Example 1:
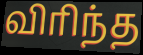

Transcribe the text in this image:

விரிந்த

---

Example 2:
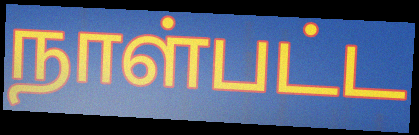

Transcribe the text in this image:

நாள்பட்ட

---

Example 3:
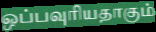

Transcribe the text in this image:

ஒப்பவுரியதாகும்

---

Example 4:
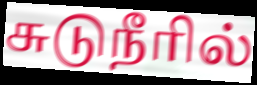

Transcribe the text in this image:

சுடுநீரில்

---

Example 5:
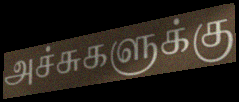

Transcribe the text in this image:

அச்சுகளுக்கு